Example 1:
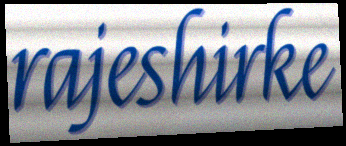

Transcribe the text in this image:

rajeshirke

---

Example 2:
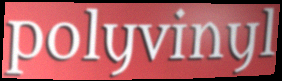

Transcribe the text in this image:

polyvinyl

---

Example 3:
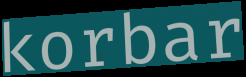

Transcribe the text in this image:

korbar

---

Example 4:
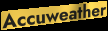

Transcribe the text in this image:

Accuweather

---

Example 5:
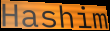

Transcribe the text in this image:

Hashim